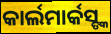
କାର୍ଲମାର୍କସ୍ଙ୍କ